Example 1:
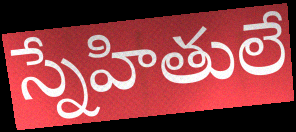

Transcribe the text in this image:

స్నేహితులే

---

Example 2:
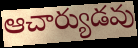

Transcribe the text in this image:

ఆచార్యుడవు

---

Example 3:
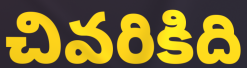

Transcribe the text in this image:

చివరికిది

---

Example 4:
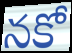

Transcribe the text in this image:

నకో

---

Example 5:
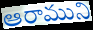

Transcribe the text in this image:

ఆరాముని